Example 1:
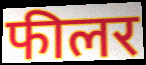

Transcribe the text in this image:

फीलर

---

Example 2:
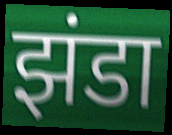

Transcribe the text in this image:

झंडा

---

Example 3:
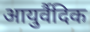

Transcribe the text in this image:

आयुर्वैदिक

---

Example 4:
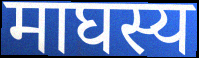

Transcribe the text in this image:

माघस्य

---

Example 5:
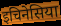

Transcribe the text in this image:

इचिनेसिया